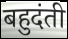
बहुदंती